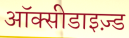
ऑक्सीडाइज़्ड